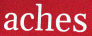
aches